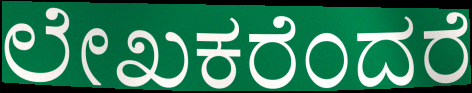
ಲೇಖಕರೆಂದರೆ